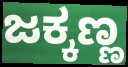
ಜಕ್ಕಣ್ಣ